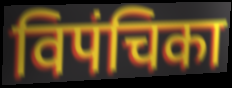
विपंचिका